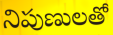
నిపుణులతో